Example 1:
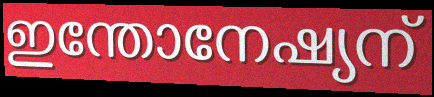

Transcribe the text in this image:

ഇന്തോനേഷ്യന്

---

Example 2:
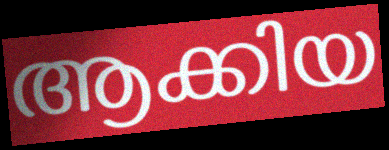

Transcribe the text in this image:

ആക്കിയ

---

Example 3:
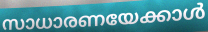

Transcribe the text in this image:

സാധാരണയേക്കാൾ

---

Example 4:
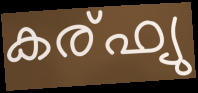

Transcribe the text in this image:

കര്ഫ്യു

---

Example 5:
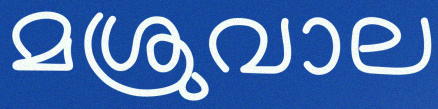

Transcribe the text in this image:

മശ്രുവാല